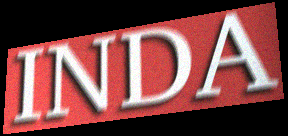
INDA